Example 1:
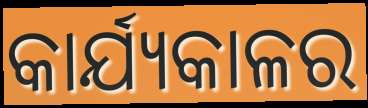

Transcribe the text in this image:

କାର୍ଯ୍ୟକାଳର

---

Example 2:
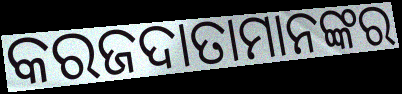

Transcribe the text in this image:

କରଜଦାତାମାନଙ୍କର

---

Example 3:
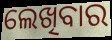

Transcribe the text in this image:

ଲେଖିବାର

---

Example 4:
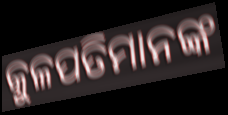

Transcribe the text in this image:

କୁଳପତିମାନଙ୍କ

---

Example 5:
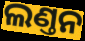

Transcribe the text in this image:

ଲଣ୍ତନ